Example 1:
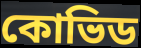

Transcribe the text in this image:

কোভিড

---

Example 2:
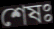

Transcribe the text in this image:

শেষঃ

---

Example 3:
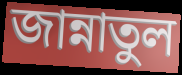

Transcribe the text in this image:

জান্নাতুল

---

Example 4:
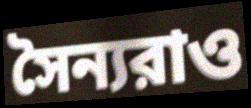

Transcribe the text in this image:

সৈন্যরাও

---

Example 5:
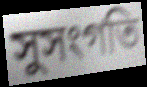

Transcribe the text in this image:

সুসংগতি